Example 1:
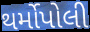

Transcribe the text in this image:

થર્મોપોલી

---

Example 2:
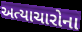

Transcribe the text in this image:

અત્યાચારોના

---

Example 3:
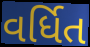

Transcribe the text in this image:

વર્ધિત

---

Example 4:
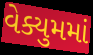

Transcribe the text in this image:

વેક્યુમમાં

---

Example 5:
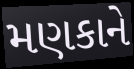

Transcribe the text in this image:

મણકાને